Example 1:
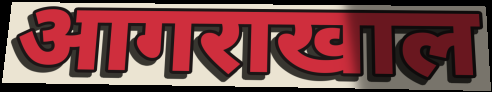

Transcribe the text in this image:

आगराखाल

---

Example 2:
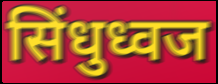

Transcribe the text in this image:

सिंधुध्वज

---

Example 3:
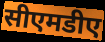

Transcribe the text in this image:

सीएमडीए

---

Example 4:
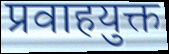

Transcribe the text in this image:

प्रवाहयुक्त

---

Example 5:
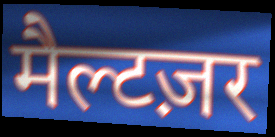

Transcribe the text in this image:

मैल्टज़र